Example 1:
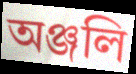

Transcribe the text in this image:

অঞ্জলি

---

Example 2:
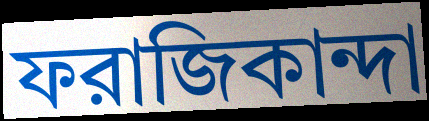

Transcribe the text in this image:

ফরাজিকান্দা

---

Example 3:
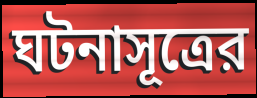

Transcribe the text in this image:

ঘটনাসূত্রের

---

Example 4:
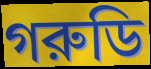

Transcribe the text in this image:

গরুডি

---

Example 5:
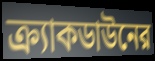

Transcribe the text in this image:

ক্র্যাকডাউনের